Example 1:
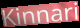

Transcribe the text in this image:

Kinnari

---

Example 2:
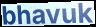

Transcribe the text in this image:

bhavuk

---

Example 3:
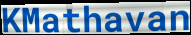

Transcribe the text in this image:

KMathavan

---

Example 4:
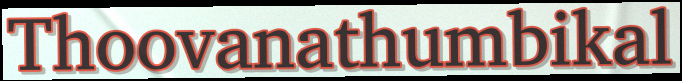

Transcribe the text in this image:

Thoovanathumbikal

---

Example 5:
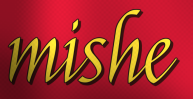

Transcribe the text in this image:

mishe